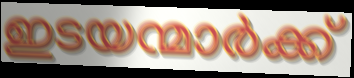
ഇടയന്മാർക്ക്